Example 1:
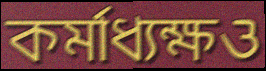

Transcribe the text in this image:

কর্মাধ্যক্ষও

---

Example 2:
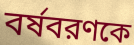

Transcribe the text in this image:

বর্ষবরণকে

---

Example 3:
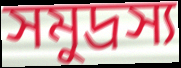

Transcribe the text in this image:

সমুদ্রস্য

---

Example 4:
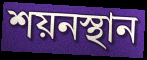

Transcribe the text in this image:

শয়নস্থান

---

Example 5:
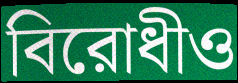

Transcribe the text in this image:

বিরোধীও